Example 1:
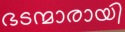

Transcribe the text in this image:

ഭടന്മാരായി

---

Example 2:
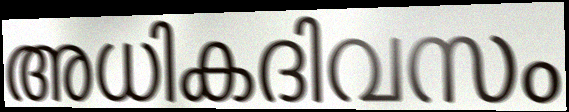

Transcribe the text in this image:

അധികദിവസം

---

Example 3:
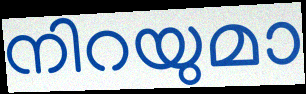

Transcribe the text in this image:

നിറയുമാ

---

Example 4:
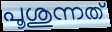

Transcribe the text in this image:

പൂശുന്നത്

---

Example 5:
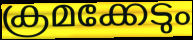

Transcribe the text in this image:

ക്രമക്കേടും